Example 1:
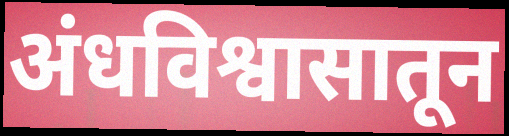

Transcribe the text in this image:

अंधविश्वासातून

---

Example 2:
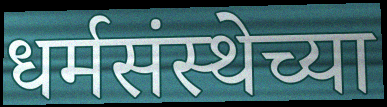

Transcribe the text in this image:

धर्मसंस्थेच्या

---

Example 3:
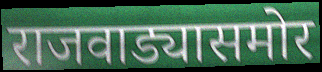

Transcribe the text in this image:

राजवाड्यासमोर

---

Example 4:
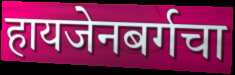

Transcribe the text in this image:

हायजेनबर्गचा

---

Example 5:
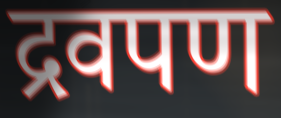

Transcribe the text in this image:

द्रवपण